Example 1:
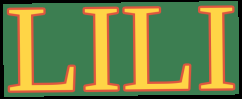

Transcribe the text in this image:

LILI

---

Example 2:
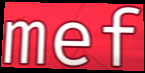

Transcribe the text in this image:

mef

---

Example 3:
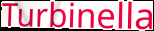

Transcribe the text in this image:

Turbinella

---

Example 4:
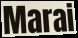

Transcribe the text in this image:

Marai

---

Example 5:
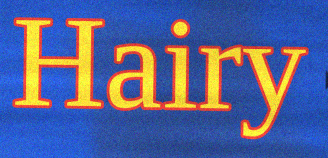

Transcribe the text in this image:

Hairy